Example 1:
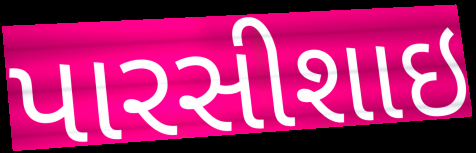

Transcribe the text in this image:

પારસીશાઇ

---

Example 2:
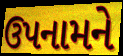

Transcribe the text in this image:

ઉપનામને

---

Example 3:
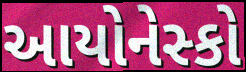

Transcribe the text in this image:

આયોનેસ્કો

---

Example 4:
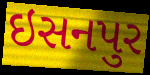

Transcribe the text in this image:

ઇસનપુર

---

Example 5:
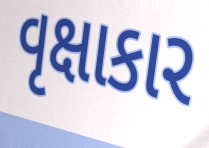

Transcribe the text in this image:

વૃક્ષાકાર